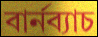
বার্নব্যাচ